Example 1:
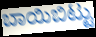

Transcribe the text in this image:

ಬಾಯಿಬಿಟ್ಟು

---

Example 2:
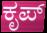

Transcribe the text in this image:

ಕೃಪ್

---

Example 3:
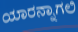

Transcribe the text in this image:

ಯಾರನ್ನಾಗಲಿ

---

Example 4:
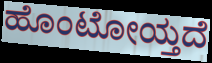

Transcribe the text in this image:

ಹೊಂಟೋಯ್ತದೆ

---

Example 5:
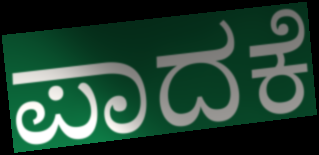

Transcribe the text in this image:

ಪಾದಕೆ